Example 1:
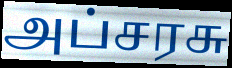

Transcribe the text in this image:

அப்சரசு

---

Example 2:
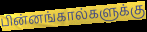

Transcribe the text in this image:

பின்னங்கால்களுக்கு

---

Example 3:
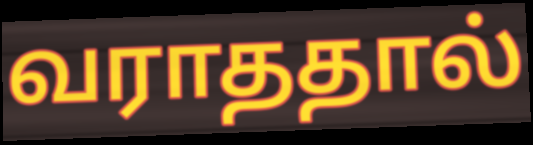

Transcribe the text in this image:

வராததால்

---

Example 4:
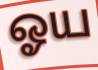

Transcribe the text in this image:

ஓய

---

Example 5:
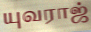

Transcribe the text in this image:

யுவராஜ்